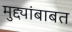
मुद्द्यांबाबत